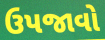
ઉપજાવો